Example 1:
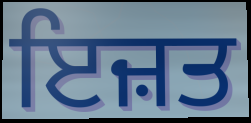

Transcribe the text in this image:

ਇਜ਼ਤ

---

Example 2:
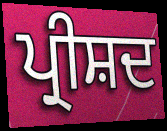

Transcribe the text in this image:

ਪ੍ਰ੍ਰੀਸ਼ਦ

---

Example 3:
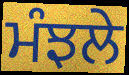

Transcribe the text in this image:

ਮੰਝਲੇ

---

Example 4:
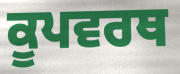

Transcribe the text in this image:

ਕੂਪਵਰਥ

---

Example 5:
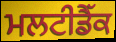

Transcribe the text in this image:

ਮਲਟੀਡੈੱਕ